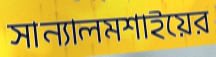
সান্যালমশাইয়ের